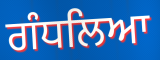
ਗੰਧਲਿਆ